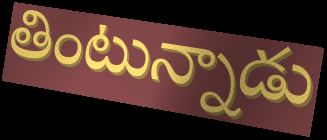
తింటున్నాడు